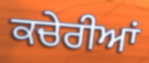
ਕਚੇਰੀਆਂ